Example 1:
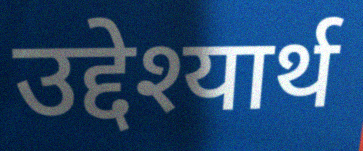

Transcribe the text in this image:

उद्देश्यार्थ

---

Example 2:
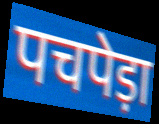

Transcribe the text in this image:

पचपेड़ा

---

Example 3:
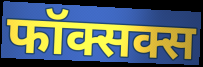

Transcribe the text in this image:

फॉक्सक्स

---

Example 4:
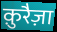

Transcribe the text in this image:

क़ुरैज़ा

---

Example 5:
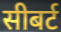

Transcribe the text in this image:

सीबर्ट